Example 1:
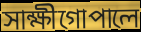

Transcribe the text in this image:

সাক্ষীগোপালে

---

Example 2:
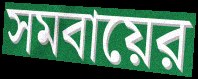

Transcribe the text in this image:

সমবায়ের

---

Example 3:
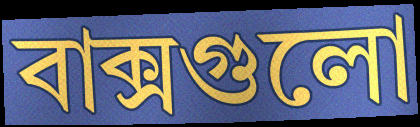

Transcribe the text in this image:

বাক্সগুলো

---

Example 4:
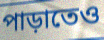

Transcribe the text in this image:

পাড়াতেও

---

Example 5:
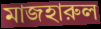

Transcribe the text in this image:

মাজহারুল